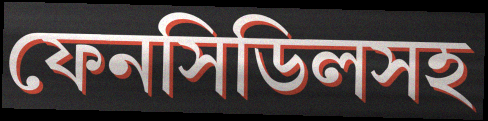
ফেনসিডিলসহ